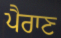
ਪੈਰਾਣ